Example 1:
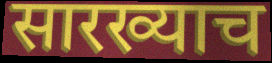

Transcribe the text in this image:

सारख्याच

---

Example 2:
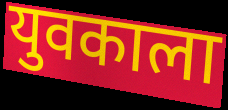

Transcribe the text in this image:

युवकाला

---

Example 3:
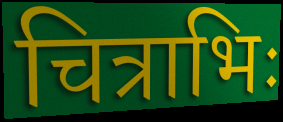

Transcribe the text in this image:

चित्राभिः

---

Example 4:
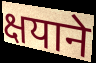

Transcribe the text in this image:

क्षयाने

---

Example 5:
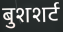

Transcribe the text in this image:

बुशशर्ट